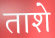
ताशे